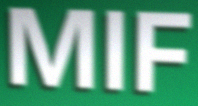
MIF